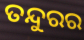
ତନ୍ଦୁରର